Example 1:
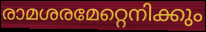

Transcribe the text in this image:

രാമശരമേറ്റെനിക്കും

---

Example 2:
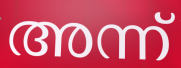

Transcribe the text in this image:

അന്ന്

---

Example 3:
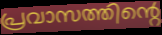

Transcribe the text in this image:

പ്രവാസത്തിന്റെ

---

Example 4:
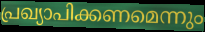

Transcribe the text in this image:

പ്രഖ്യാപിക്കണമെന്നും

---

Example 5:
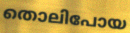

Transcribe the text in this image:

തൊലിപോയ